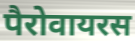
पैरोवायरस